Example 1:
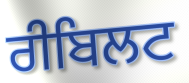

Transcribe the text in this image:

ਰੀਬਿਲਟ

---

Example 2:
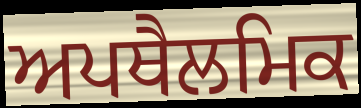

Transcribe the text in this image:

ਅਪਥੈਲਮਿਕ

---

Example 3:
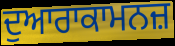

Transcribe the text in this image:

ਦੁਆਰਾਕਾਮਨਜ਼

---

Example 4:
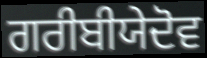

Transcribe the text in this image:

ਗਰੀਬੀਯੇਦੋਵ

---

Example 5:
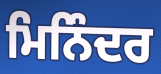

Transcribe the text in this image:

ਮਿਨਿੰਦਰ